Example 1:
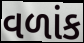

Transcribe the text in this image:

વળાંક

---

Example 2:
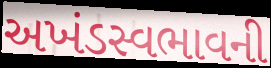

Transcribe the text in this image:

અખંડસ્વભાવની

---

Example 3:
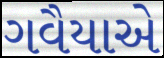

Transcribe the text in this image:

ગવૈયાએ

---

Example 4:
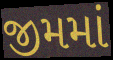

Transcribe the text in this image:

જીમમાં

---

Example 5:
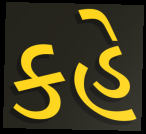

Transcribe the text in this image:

કહે